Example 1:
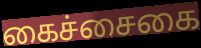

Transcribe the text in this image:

கைச்சைகை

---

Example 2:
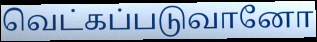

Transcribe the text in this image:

வெட்கப்படுவானோ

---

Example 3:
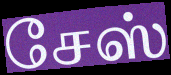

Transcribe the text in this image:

சேஸ்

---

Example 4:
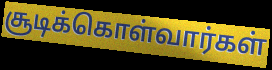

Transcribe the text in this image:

சூடிக்கொள்வார்கள்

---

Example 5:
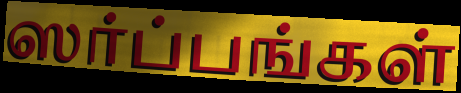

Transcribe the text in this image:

ஸர்ப்பங்கள்